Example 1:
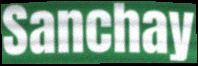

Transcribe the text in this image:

Sanchay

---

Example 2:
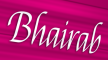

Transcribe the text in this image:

Bhairab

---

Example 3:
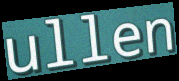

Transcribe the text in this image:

ullen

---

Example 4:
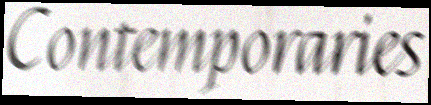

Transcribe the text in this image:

Contemporaries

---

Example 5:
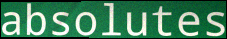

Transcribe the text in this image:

absolutes